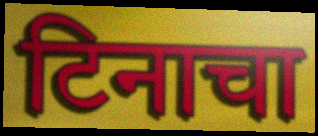
टिनाचा